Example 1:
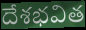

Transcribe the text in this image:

దేశభవిత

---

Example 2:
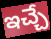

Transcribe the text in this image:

ఇచ్చే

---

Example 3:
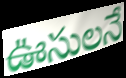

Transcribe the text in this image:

ఊసులనే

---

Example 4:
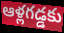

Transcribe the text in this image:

ఆళ్లగడ్డకు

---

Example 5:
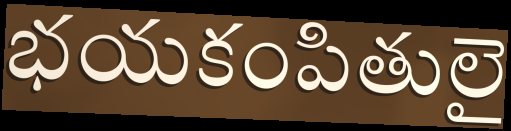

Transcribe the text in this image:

భయకంపితులై